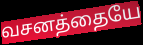
வசனத்தையே